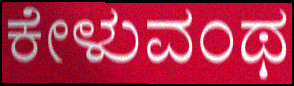
ಕೇಳುವಂಥ